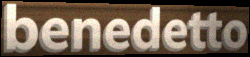
benedetto